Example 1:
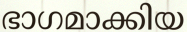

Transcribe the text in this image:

ഭാഗമാക്കിയ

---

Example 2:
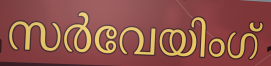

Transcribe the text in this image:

സർവേയിംഗ്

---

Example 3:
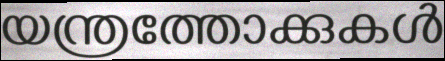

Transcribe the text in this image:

യന്ത്രത്തോക്കുകൾ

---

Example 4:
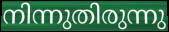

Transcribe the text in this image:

നിന്നുതിരുന്നു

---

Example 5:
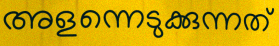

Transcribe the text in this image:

അളന്നെടുക്കുന്നത്